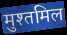
मुश्तमिल